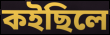
কইছিলে